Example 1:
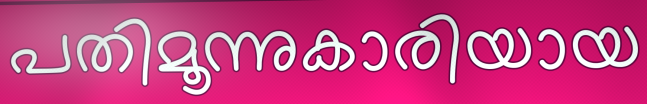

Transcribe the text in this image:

പതിമൂന്നുകാരിയായ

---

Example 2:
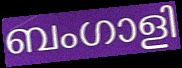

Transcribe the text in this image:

ബംഗാളി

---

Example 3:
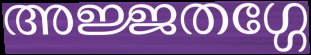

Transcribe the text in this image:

അജ്ജതഗ്ഗേ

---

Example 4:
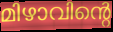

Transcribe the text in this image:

മിഴാവിന്റെ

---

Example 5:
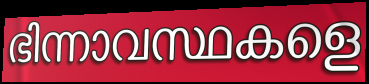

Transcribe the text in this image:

ഭിന്നാവസ്ഥകളെ